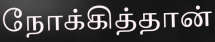
நோக்கித்தான்